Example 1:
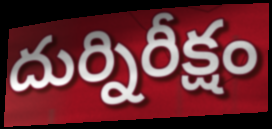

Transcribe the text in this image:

దుర్నిరీక్షం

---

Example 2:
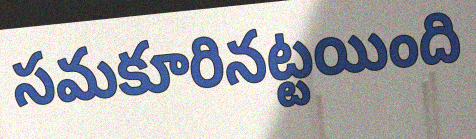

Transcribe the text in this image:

సమకూరినట్టయింది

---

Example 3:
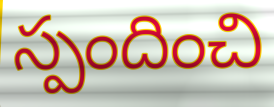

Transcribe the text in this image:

స్పందించి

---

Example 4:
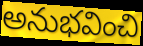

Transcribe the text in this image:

అనుభవించి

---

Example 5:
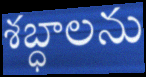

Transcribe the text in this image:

శబ్ధాలను